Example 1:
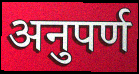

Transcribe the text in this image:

अनुपर्ण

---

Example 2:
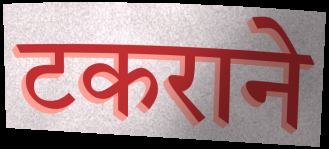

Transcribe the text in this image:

टकराने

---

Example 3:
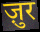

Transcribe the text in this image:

ज़ुर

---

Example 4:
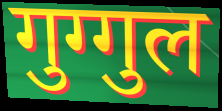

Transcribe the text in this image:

गुग्गुल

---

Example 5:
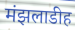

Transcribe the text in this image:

मंझलाडीह